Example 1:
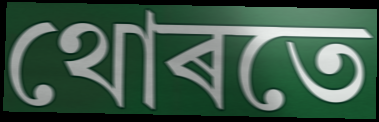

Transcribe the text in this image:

থোৰতে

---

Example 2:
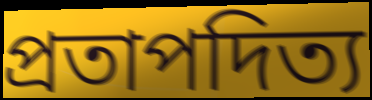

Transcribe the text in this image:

প্ৰতাপদিত্য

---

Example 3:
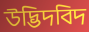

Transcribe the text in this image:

উদ্ভিদবিদ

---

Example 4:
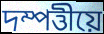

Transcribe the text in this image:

দম্পত্তীয়ে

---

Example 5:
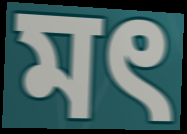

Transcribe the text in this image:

মৎ